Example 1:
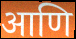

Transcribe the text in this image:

आणि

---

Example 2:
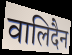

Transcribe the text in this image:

वालिदैन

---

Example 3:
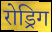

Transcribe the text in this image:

रोड्रिग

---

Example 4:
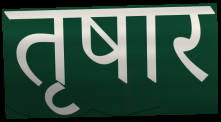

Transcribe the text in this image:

तृषार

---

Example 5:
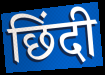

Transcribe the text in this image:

छिंदी